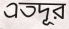
এতদূর